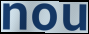
nou